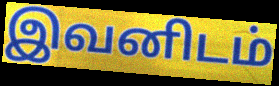
இவனிடம்